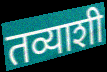
तव्याशी